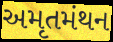
અમૃતમંથન